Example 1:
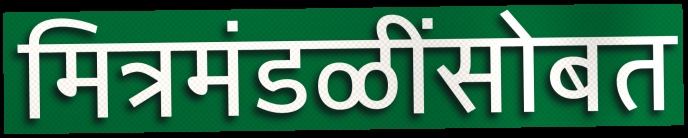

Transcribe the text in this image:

मित्रमंडळींसोबत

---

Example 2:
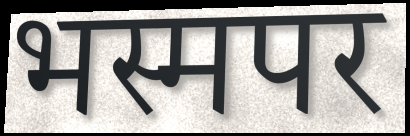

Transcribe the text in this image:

भस्मपर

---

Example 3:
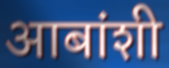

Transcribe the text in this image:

आबांशी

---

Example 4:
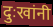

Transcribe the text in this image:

दुःखांनी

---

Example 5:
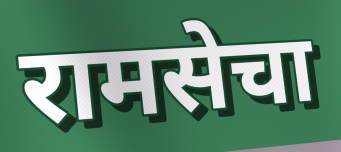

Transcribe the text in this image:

रामसेचा